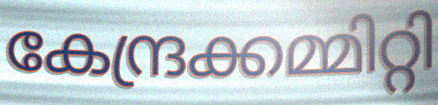
കേന്ദ്രക്കമ്മിറ്റി